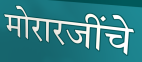
मोरारजींचे